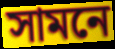
সামনে